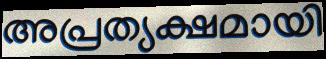
അപ്രത്യക്ഷമായി